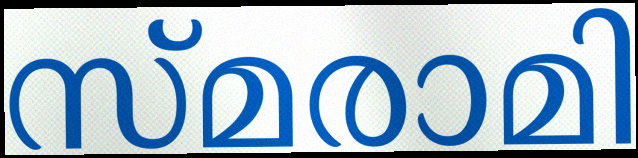
സ്മരാമി